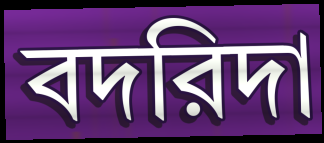
বদরিদা